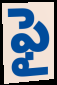
ఫై